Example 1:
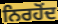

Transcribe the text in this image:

ਨਿਰਹੋਂਦ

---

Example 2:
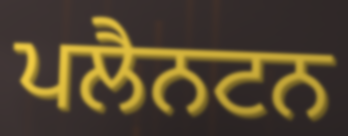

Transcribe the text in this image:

ਪਲੈਨਟਨ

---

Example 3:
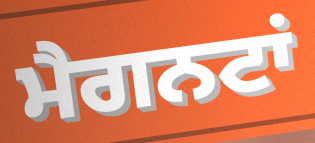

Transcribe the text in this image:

ਮੈਗਨਟਾਂ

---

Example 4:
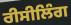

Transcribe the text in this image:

ਰੀਸੀਲਿੰਗ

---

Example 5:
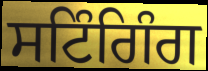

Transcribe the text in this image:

ਸਟਿੰਗਿੰਗ